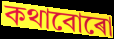
কথাবোৰো